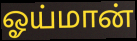
ஓய்மான்